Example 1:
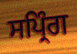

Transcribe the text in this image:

ਸਪ੍ਰਿੰਗ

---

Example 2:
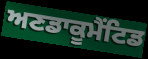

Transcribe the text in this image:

ਅਣਡਾਕੂਮੈਂਟਿਡ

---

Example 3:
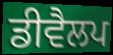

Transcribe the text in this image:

ਡੀਵੈਲਪ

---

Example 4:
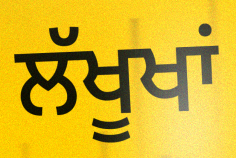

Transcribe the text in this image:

ਲੱਖੂਖਾਂ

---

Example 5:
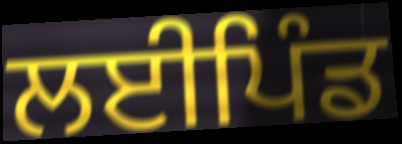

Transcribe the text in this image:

ਲਈਪਿੰਡ